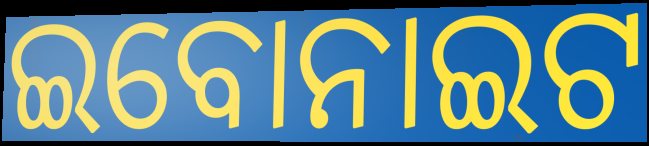
ଇବୋନାଇଟ